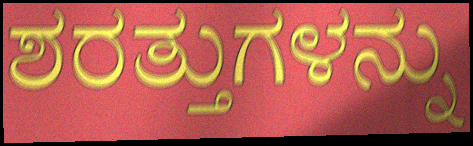
ಶರತ್ತುಗಳನ್ನು